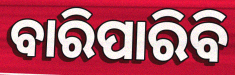
ବାରିପାରିବି